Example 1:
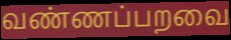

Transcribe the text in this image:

வண்ணப்பறவை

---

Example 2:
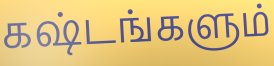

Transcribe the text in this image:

கஷ்டங்களும்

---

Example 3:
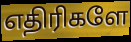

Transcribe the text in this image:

எதிரிகளே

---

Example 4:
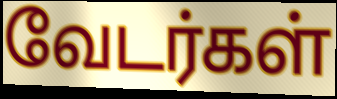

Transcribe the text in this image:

வேடர்கள்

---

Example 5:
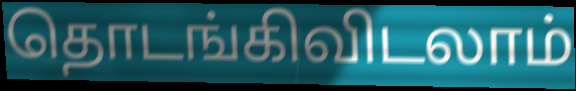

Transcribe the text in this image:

தொடங்கிவிடலாம்